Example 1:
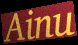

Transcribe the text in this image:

Ainu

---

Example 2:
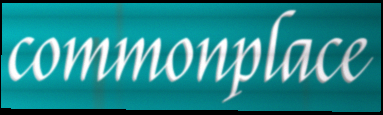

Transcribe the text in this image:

commonplace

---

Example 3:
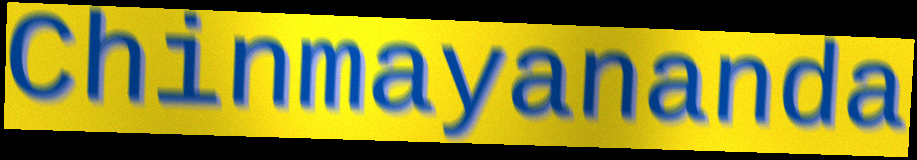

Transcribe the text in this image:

Chinmayananda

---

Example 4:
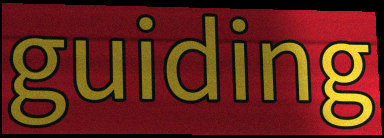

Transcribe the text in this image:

guiding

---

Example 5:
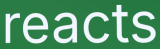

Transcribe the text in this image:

reacts